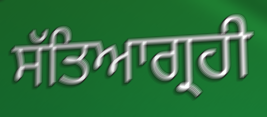
ਸੱਤਿਆਗ੍ਰਹੀ